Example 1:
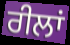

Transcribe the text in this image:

ਰੀਲਾਂ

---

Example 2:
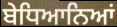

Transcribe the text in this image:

ਬੇਧਿਆਨਿਆਂ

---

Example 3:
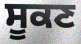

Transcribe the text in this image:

ਸੂਕਣ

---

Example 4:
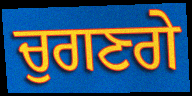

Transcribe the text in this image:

ਚੁਗਣਗੇ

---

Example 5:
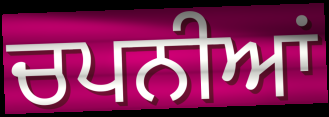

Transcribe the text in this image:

ਚਪਨੀਆਂ